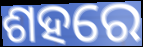
ଶହରେ